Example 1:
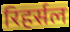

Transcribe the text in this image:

रिहर्सल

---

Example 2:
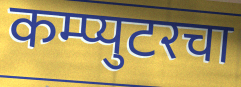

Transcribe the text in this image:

कम्प्युटरचा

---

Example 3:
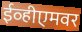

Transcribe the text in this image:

ईव्हीएमवर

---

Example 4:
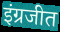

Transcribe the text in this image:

इंग्रजीत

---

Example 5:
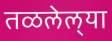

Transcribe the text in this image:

तळलेल्या